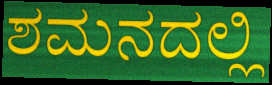
ಶಮನದಲ್ಲಿ